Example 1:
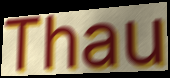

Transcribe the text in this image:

Thau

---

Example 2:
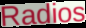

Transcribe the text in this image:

Radios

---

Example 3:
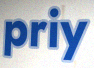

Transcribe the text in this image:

priy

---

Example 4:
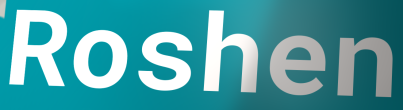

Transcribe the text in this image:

Roshen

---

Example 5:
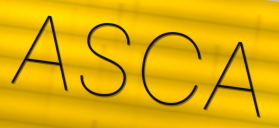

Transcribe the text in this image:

ASCA